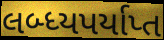
લબ્ધ્યપર્યાપ્ત